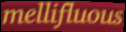
mellifluous